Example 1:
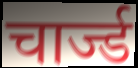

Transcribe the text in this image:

चार्ज्ड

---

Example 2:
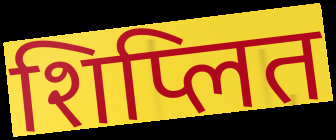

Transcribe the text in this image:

शिप्लित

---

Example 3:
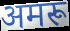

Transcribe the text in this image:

अमरू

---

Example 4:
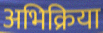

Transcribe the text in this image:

अभिक्रिया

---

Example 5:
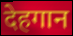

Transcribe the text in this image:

देहगान